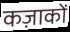
कज़ाकों